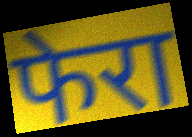
फेरा